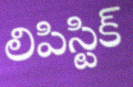
లిపిస్టిక్